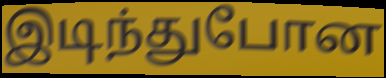
இடிந்துபோன